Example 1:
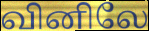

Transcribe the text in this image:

வினிலே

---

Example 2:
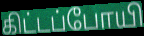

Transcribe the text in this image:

கிட்டப்போயி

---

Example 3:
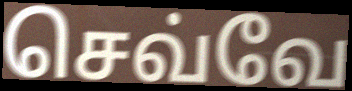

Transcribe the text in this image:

செவ்வே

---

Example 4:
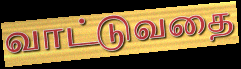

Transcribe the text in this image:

வாட்டுவதை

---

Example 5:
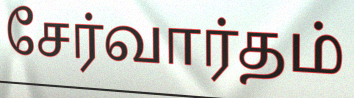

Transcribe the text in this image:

சேர்வார்தம்